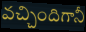
వచ్చిందిగానీ